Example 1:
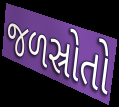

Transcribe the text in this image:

જળસ્રોતો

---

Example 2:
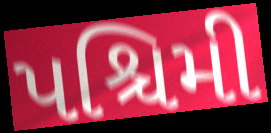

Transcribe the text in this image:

પશ્ચિમી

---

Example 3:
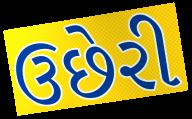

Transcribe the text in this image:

ઉછેરી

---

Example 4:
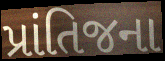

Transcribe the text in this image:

પ્રાંતિજના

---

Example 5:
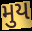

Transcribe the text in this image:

મુય